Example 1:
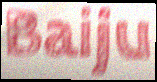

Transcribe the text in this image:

Baiju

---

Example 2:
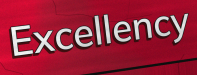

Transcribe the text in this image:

Excellency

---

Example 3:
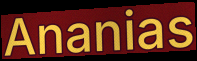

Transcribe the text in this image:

Ananias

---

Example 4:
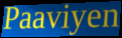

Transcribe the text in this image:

Paaviyen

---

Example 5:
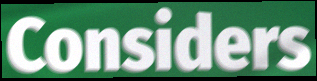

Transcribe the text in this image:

Considers